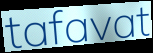
tafavat